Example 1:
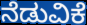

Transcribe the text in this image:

ನೆಡುವಿಕೆ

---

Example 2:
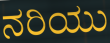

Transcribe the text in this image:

ನರಿಯು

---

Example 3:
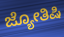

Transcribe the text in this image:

ಜ್ಯೋತಿಷಿ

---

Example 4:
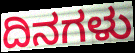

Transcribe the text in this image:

ದಿನಗಳು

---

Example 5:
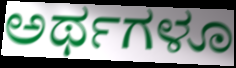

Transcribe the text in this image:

ಅರ್ಥಗಳೂ